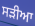
ਸੜੀਆ